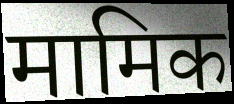
मामिक